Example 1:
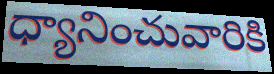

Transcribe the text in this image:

ధ్యానించువారికి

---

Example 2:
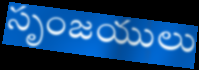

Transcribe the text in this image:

సృంజయులు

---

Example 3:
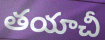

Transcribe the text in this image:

తయాచీ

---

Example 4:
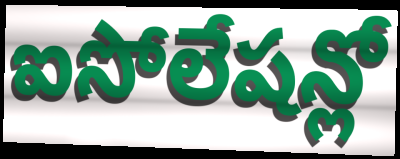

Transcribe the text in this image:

ఐసోలేషన్లో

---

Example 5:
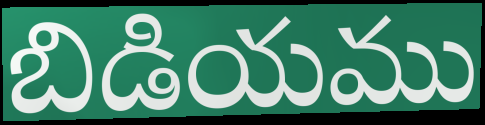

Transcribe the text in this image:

బిడియము